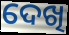
ଦେଖି